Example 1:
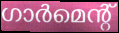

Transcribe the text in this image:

ഗാർമെന്റ്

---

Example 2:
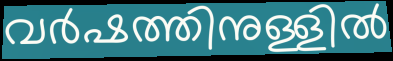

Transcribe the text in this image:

വർഷത്തിനുള്ളിൽ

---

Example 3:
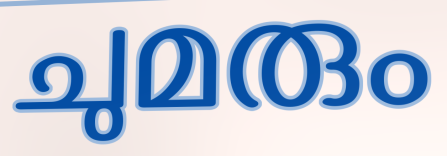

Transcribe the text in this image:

ചുമരും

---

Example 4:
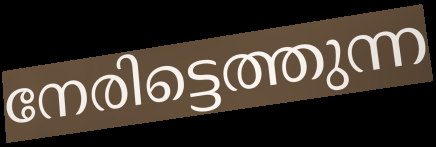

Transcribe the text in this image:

നേരിട്ടെത്തുന്ന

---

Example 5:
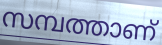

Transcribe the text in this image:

സമ്പത്താണ്